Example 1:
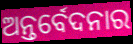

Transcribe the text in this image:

ଅନ୍ତର୍ବେଦନାର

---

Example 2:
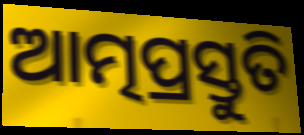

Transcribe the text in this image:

ଆତ୍ମପ୍ରସ୍ତୁତି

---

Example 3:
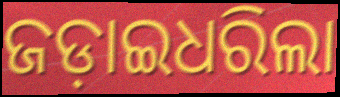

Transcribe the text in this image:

ଜଡ଼ାଇଧରିଲା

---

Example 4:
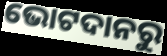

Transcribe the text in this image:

ଭୋଟଦାନରୁ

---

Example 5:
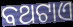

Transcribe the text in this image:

ବଥଟାଏ